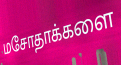
மசோதாக்களை